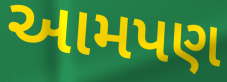
આમપણ